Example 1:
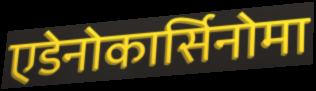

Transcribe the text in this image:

एडेनोकार्सिनोमा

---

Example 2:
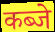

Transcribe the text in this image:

कब्जे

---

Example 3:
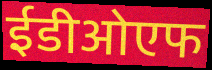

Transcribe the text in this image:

ईडीओएफ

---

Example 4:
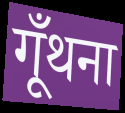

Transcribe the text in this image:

गूँथना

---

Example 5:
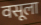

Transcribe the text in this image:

वसूला